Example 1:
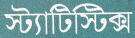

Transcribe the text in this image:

স্ট্যাটিস্টিক্স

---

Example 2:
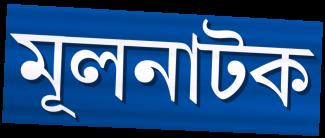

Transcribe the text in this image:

মূলনাটক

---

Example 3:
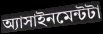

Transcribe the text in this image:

অ্যাসাইনমেন্টটা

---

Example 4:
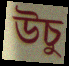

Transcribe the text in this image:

উচু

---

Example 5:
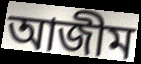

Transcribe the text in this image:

আজীম